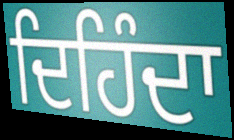
ਦਿਹਿੰਦਾ